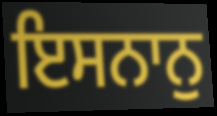
ਇਸਨਾਨੁ